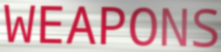
WEAPONS